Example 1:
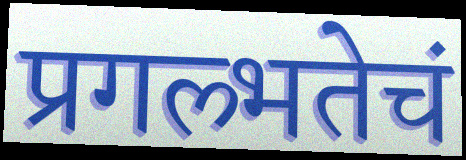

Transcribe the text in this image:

प्रगल्भतेचं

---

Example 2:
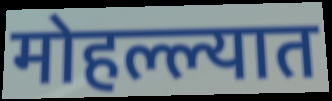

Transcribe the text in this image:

मोहल्ल्यात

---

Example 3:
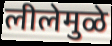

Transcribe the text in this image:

लीलेमुळे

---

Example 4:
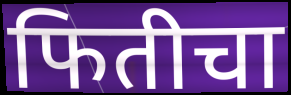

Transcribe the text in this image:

फितीचा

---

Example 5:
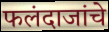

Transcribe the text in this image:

फलंदाजांचे